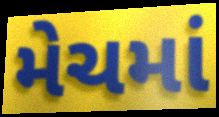
મેચમાં